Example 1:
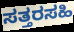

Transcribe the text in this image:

ಸತ್ತರಸಹಿ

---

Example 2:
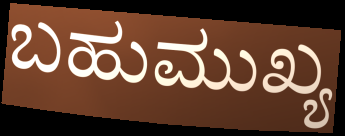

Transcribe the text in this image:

ಬಹುಮುಖ್ಯ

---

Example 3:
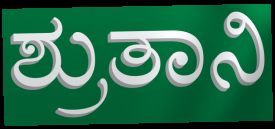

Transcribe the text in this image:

ಶ್ರುತಾನಿ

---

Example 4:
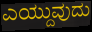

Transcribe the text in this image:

ಎಯ್ದುವುದು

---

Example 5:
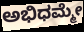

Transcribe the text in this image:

ಅಭಿಧಮ್ಮೇ